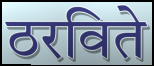
ठरविते